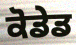
ਕੋਡੇਡ